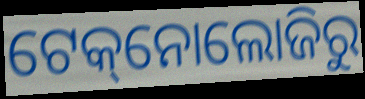
ଟେକ୍‌ନୋଲୋଜିରୁ